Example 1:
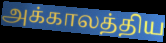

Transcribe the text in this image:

அக்காலத்திய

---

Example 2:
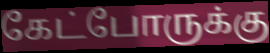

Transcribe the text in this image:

கேட்போருக்கு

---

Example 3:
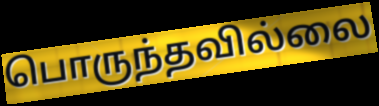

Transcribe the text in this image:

பொருந்தவில்லை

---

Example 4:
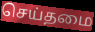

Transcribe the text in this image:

செய்தமை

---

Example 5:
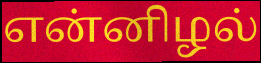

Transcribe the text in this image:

என்னிழல்